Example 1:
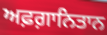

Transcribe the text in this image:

ਅਫ਼ਗ਼ਾਨਿਤਾਨ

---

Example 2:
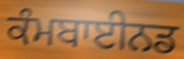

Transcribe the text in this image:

ਕੰਮਬਾਈਨਡ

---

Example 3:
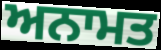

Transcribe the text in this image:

ਅਨਾਮਤ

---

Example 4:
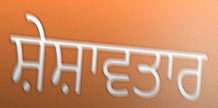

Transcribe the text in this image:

ਸ਼ੇਸ਼ਾਵਤਾਰ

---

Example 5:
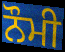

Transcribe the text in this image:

ਨੌਮੀ